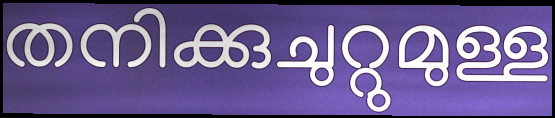
തനിക്കുചുറ്റുമുള്ള